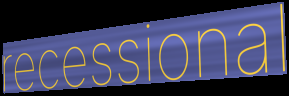
recessional